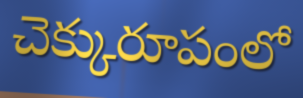
చెక్కురూపంలో